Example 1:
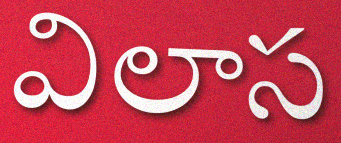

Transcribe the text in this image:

విలాస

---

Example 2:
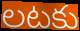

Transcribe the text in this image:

లటకు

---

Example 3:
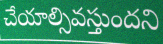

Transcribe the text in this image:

చేయాల్సివస్తుందని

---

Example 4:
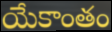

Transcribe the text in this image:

యేకాంతం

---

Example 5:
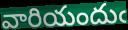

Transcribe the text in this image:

వారియందుఁ